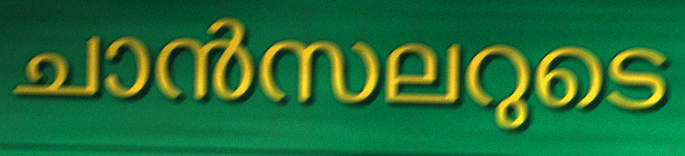
ചാൻസലറുടെ